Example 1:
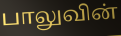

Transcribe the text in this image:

பாலுவின்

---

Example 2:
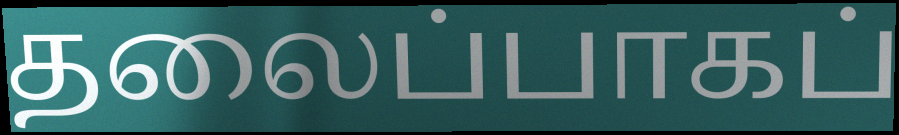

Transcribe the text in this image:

தலைப்பாகப்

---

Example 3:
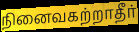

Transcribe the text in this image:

நினைவகற்றாதீர்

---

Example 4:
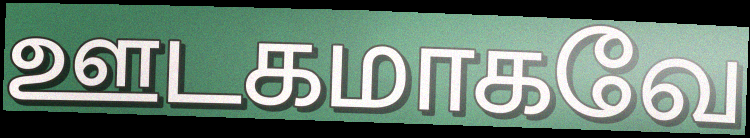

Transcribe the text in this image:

ஊடகமாகவே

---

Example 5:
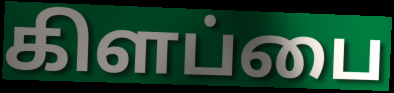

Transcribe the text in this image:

கிளப்பை